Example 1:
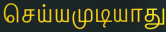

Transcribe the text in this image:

செய்யமுடியாது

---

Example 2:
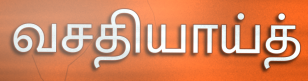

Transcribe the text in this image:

வசதியாய்த்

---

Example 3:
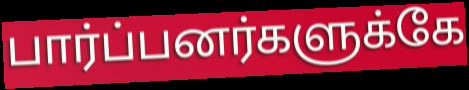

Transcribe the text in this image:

பார்ப்பனர்களுக்கே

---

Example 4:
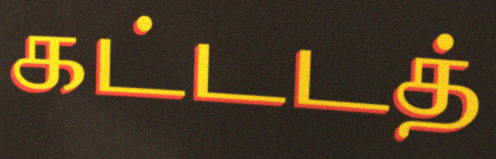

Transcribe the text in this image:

கட்டடத்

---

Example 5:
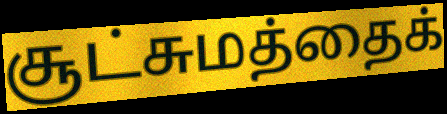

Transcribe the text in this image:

சூட்சுமத்தைக்